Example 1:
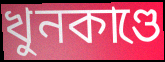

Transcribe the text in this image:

খুনকাণ্ডে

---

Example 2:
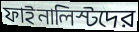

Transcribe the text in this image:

ফাইনালিস্টদের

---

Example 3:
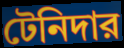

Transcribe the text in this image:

টেনিদার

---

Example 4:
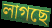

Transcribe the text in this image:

লাগছে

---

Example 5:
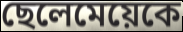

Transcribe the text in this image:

ছেলেমেয়েকে